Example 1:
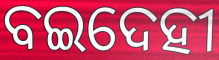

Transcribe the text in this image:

ବଇଦେହୀ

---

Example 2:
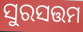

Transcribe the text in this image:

ସୁରସତ୍ତମ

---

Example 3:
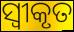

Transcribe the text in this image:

ସ୍ଵୀକୃତ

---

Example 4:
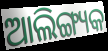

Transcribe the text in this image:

ଆଲିଙ୍ଗ୍ୟକ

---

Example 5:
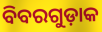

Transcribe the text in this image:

ବିବରଗୁଡ଼ାକ